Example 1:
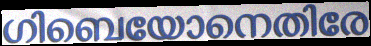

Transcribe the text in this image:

ഗിബെയോനെതിരേ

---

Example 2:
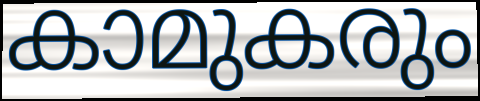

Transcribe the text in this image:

കാമുകരും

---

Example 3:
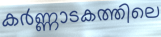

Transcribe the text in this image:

കർണ്ണാടകത്തിലെ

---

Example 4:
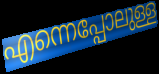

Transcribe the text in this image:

എന്നെപ്പോലുള്ള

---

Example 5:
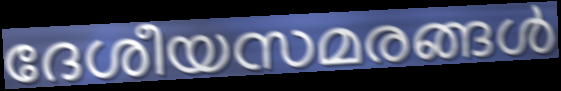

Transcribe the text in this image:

ദേശീയസമരങ്ങൾ